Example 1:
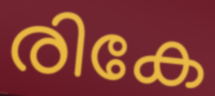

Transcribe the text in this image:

രികേ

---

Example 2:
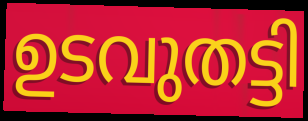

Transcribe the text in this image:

ഉടവുതട്ടി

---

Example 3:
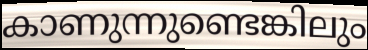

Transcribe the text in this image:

കാണുന്നുണ്ടെങ്കിലും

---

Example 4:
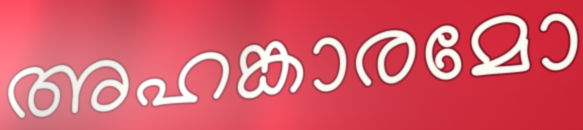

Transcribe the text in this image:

അഹങ്കാരമോ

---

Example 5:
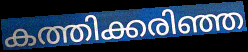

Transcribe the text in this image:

കത്തിക്കരിഞ്ഞ